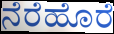
ನೆರೆಹೊರೆ